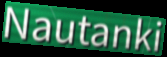
Nautanki